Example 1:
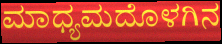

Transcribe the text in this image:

ಮಾಧ್ಯಮದೊಳಗಿನ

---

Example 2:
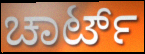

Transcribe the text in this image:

ಚಾರ್ಟ್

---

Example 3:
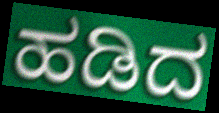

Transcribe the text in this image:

ಹಡಿದ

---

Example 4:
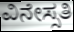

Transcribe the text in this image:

ವಿನೇಸ್ಸತಿ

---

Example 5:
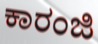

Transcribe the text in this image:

ಕಾರಂಜಿ